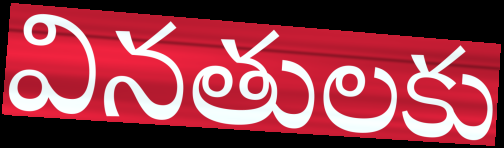
వినతులకు